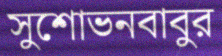
সুশোভনবাবুর